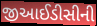
જીઆઈડીસીની